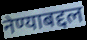
नेण्याबद्दल